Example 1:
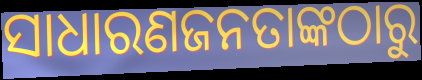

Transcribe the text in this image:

ସାଧାରଣଜନତାଙ୍କଠାରୁ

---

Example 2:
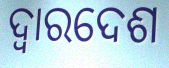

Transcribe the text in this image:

ଦ୍ଵାରଦେଶ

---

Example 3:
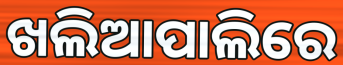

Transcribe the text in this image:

ଖଲିଆପାଲିରେ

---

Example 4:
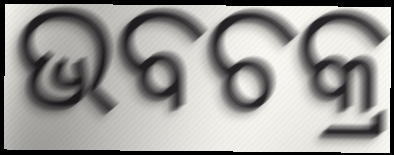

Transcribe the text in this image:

ଭବଚକ୍ର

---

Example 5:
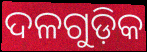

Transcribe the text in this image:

ଦଳଗୁଡ଼ିକ